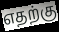
எதற்கு